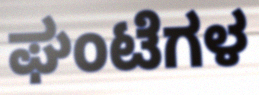
ಘಂಟೆಗಳ